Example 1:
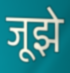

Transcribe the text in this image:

जूझे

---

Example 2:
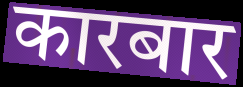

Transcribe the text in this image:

कारबार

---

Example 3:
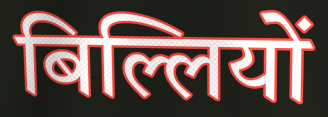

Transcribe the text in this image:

बिल्लियों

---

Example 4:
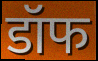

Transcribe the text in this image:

डॉफ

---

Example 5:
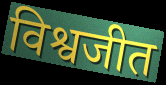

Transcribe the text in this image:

विश्वजीत